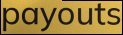
payouts